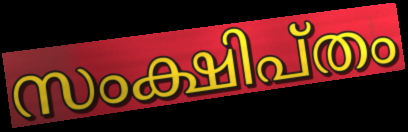
സംക്ഷിപ്തം